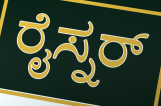
ರೈಸ್ನರ್